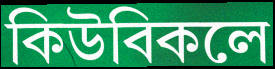
কিউবিকলে